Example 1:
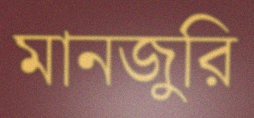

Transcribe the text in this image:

মানজুরি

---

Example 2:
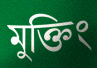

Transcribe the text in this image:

মুক্তিং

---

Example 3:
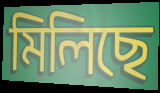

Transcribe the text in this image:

মিলিছে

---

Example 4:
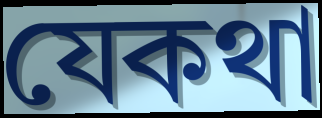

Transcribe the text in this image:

যেকথা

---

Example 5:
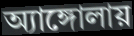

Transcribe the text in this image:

অ্যাঙ্গোলায়